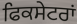
ਫਿਕਸੇਟਰਾਂ